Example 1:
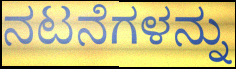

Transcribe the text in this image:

ನಟನೆಗಳನ್ನು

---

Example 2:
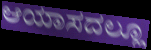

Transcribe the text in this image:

ಆಯಾಸದಲ್ಲೂ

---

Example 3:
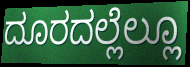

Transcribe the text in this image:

ದೂರದಲ್ಲೆಲ್ಲೂ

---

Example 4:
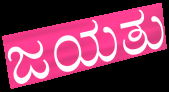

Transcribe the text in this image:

ಜಯತು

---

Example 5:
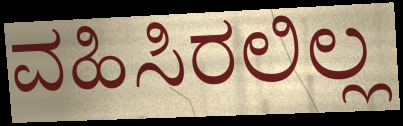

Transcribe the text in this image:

ವಹಿಸಿರಲಿಲ್ಲ